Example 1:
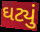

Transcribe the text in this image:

ઘટ્યું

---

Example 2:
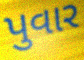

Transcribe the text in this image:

પુવાર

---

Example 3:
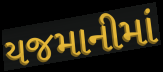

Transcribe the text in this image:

યજમાનીમાં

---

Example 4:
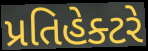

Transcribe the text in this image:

પ્રતિહેક્ટરે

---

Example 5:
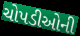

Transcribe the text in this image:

ચોપડીઓની